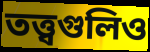
তত্ত্বগুলিও